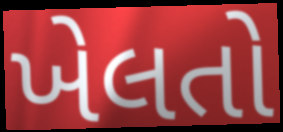
ખેલતો